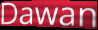
Dawan